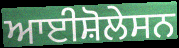
ਆਈਸ਼ੋਲੇਸਨ